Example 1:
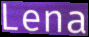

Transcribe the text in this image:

Lena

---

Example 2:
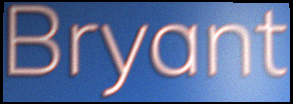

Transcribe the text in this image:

Bryant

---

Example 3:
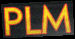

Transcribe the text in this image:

PLM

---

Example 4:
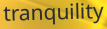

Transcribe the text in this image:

tranquility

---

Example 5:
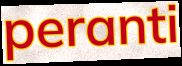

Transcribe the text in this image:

peranti